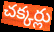
చక్కర్లు